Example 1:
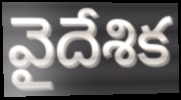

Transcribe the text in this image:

వైదేశిక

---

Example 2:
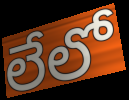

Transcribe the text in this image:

లేలో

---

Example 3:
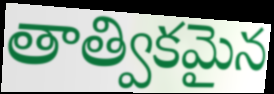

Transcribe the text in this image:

తాత్వికమైన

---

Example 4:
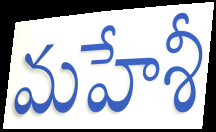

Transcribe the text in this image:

మహేశీ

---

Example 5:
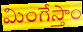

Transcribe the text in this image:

మింగేస్తాం